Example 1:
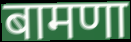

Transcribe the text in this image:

बामणा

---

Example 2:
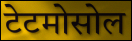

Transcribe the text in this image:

टेटमोसोल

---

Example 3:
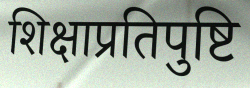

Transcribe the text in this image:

शिक्षाप्रतिपुष्टि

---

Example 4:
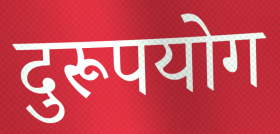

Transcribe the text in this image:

दुरूपयोग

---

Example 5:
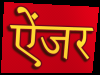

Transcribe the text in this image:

ऐंजर